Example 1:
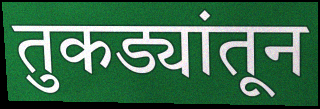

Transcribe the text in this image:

तुकड्यांतून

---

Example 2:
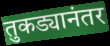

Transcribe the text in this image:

तुकड्यानंतर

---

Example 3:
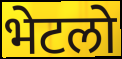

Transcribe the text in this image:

भेटलो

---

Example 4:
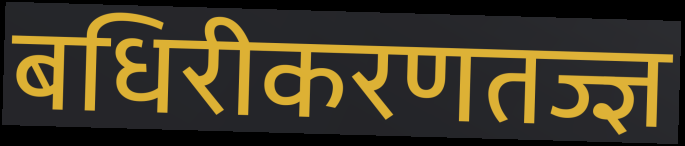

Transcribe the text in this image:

बधिरीकरणतज्ज्ञ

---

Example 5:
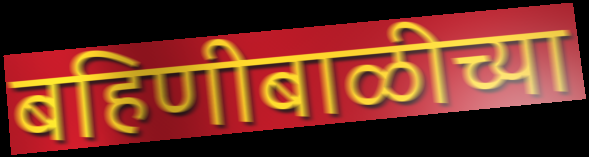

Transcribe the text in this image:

बहिणीबाळीच्या